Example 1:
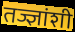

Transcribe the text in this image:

तज्ज्ञांशी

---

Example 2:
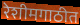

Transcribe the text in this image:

रेशीमगाठीत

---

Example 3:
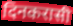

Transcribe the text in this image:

दिनकरासी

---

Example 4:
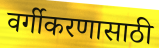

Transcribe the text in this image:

वर्गीकरणासाठी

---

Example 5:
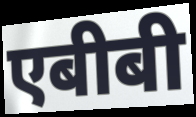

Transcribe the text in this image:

एबीबी